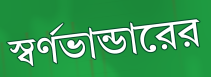
স্বর্ণভান্ডারের